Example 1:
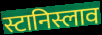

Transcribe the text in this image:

स्टानिस्लाव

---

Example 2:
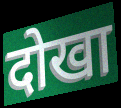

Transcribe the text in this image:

दोखा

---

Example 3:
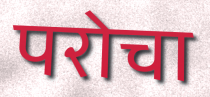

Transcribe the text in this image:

परोचा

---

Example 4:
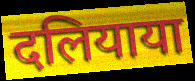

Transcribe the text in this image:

दलियाया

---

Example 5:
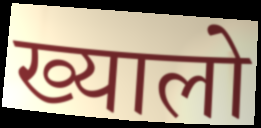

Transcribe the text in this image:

ख्यालो